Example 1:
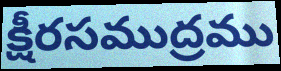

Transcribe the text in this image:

క్షీరసముద్రము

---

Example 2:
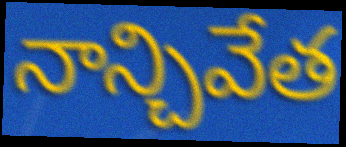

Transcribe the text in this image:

నాన్చివేత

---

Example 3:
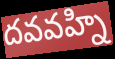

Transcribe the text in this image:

దవవహ్ని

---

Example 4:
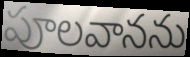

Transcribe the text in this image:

పూలవానను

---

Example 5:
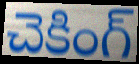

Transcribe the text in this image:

చెకింగ్